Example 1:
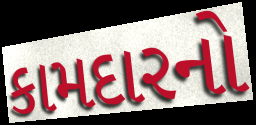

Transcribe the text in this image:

કામદારનો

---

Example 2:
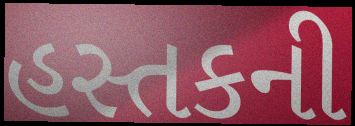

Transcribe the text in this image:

હસ્તકની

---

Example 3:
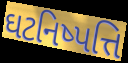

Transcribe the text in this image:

ઘટનિષ્પત્તિ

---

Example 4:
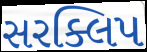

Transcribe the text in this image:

સરક્લિપ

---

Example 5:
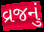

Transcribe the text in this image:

વ્રજનું